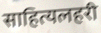
साहित्यलहरी